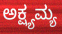
ಅಕ್ಷ್ಯಮ್ಯ